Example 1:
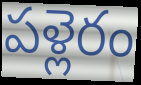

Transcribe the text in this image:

పళ్లెరం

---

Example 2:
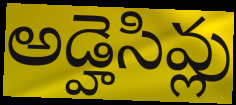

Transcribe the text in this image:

అడ్హెసివ్లు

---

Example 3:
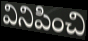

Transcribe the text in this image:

వినిపించి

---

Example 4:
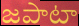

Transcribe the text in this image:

జపాటా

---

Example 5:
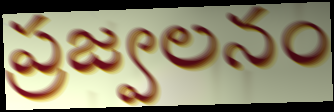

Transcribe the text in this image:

ప్రజ్వలనం